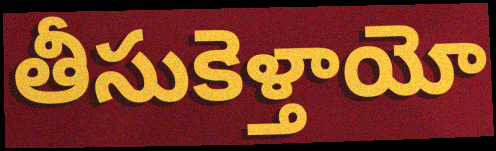
తీసుకెళ్తాయో